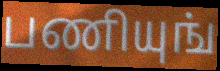
பணியுங்